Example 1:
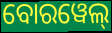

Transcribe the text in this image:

ବୋରୱେଲ୍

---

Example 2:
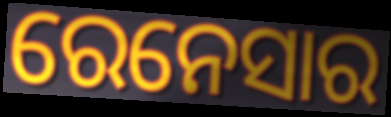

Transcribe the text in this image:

ରେନେସାର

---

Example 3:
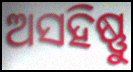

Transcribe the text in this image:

ଅସହିଷ୍ଣୁ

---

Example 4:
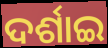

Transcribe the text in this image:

ଦର୍ଶାଇ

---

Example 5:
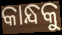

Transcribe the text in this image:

କାନ୍ଧକୁ